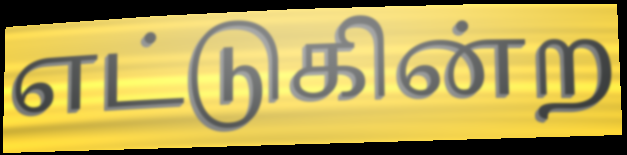
எட்டுகின்ற